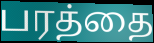
பரத்தை